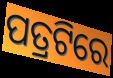
ପତ୍ରଟିରେ